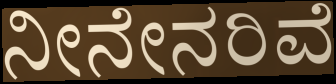
ನೀನೇನರಿವೆ